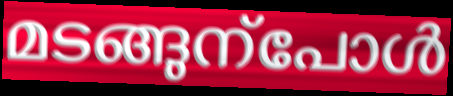
മടങ്ങുന്പോൾ